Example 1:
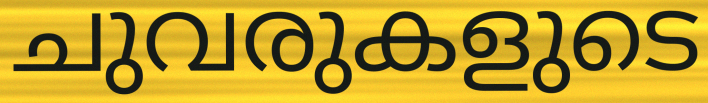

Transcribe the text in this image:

ചുവരുകളുടെ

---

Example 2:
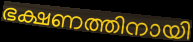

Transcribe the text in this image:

ഭക്ഷണത്തിനായി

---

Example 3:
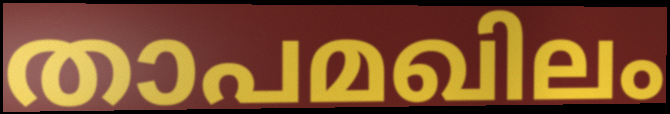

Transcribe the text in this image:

താപമഖിലം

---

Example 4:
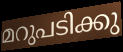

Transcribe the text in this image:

മറുപടിക്കു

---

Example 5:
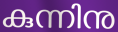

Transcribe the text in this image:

കുന്നിനു